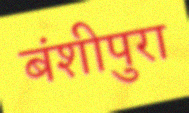
बंशीपुरा